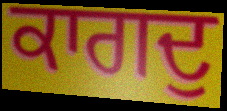
ਕਾਗਦੁ